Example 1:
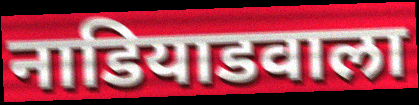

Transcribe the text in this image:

नाडियाडवाला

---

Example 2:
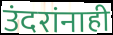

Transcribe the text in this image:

उंदरांनाही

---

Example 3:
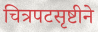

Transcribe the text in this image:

चित्रपटसृष्टीने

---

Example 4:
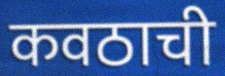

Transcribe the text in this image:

कवठाची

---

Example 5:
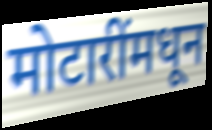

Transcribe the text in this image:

मोटारींमधून